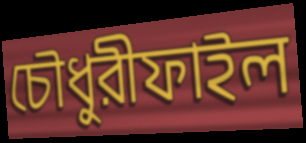
চৌধুরীফাইল